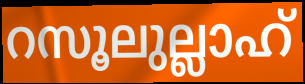
റസൂലുല്ലാഹ്